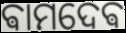
ଵାମଦେଵ